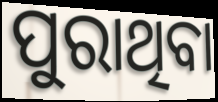
ପୁରାଥିବା